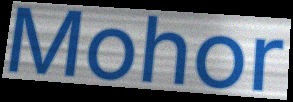
Mohor